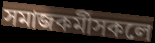
সমাজকৰ্মীসকলে